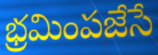
భ్రమింపజేసే